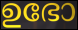
ഉഭോ